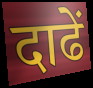
दाढें